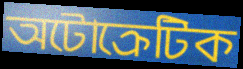
অটোক্রেটিক